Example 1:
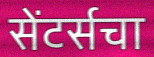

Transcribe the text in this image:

सेंटर्सचा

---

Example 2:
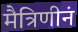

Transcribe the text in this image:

मैत्रिणीनं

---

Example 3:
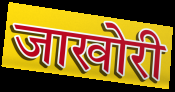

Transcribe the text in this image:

जाखोरी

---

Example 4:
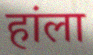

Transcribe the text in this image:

हांला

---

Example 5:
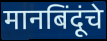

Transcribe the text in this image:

मानबिंदूंचे